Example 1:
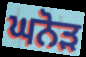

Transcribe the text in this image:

ਘਨੋੜ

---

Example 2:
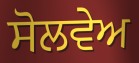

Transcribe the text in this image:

ਸੋਲਵੇਅ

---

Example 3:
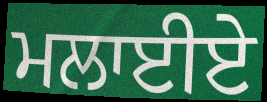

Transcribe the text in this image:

ਮਲਾਈਏ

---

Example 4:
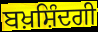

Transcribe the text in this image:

ਬਖ਼ਸ਼ਿੰਦਗੀ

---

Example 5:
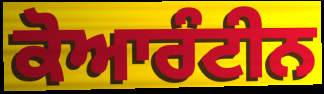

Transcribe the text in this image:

ਕੋਆਰੰਟੀਨ